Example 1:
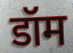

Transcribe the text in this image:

डॉम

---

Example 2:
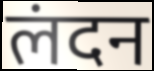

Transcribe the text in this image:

लंदन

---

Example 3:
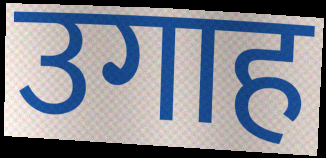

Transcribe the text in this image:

उगाह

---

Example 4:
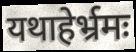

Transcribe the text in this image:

यथाहेर्भ्रमः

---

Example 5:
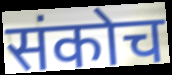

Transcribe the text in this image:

संकोच